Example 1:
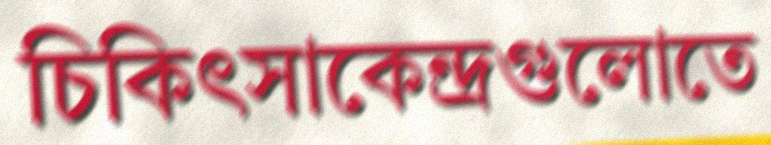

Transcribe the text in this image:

চিকিৎসাকেন্দ্রগুলোতে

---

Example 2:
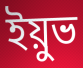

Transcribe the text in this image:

ইয়ুভ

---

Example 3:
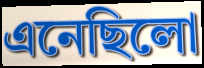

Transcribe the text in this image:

এনেছিলো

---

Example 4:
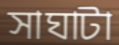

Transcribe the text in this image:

সাঘাটা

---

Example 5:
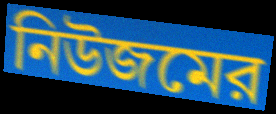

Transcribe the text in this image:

নিউজমের